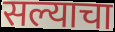
सल्याचा